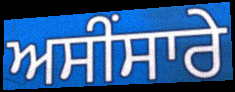
ਅਸੀਂਸਾਰੇ